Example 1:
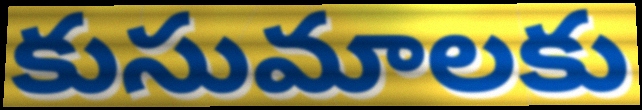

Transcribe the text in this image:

కుసుమాలకు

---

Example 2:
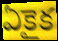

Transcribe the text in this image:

ఏకైక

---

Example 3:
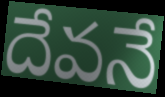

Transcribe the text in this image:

దేవనే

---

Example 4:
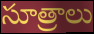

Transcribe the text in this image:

సూత్రాలు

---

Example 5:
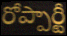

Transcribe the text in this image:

రోప్పార్టీ